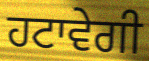
ਹਟਾਵੇਗੀ